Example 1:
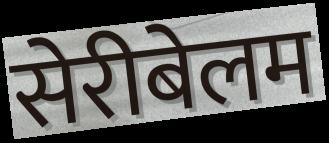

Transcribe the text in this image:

सेरीबेलम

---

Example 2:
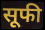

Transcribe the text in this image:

सूफी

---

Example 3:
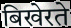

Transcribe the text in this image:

बिखेरते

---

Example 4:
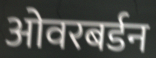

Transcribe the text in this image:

ओवरबर्डन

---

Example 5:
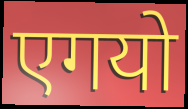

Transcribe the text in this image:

एगयो